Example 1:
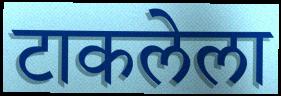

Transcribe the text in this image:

टाकलेला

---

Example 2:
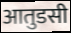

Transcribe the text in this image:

आतुडसी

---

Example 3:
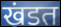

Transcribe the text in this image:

खंडत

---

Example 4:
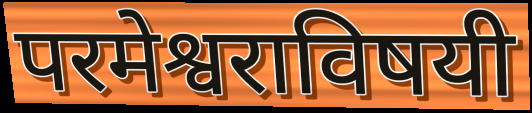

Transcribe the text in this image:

परमेश्वराविषयी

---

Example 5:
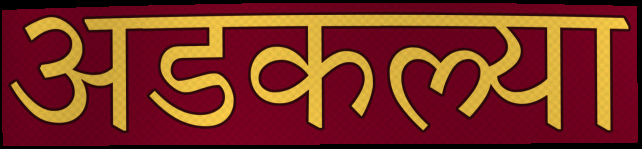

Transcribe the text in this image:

अडकल्या